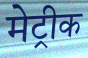
मेट्रीक